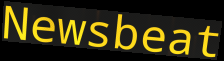
Newsbeat